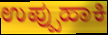
ಉಪ್ಪುಹಾಕಿ